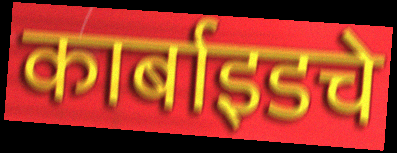
कार्बाइडचे